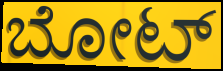
ಬೋಟ್